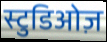
स्टुडिओज़